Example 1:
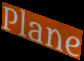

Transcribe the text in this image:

Plane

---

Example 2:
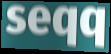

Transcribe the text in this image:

seqq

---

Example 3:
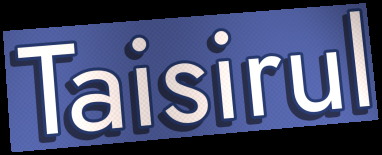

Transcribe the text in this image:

Taisirul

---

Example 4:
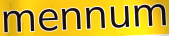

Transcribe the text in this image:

mennum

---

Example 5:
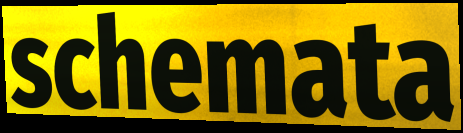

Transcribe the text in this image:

schemata